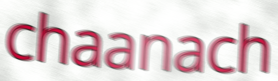
chaanach